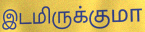
இடமிருக்குமா